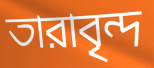
তারাবৃন্দ